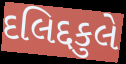
દલિદ્દકુલે